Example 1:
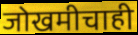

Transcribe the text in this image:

जोखमीचाही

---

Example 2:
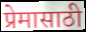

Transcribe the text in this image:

प्रेमासाठी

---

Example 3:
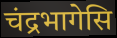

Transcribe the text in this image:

चंद्रभागेसि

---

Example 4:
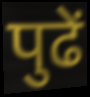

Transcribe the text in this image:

पुढें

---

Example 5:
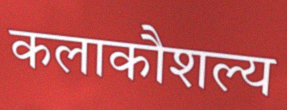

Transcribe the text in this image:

कलाकौशल्य